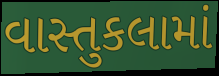
વાસ્તુકલામાં